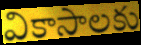
వికాసాలకు